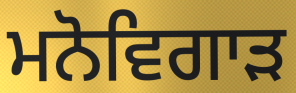
ਮਨੋਵਿਗਾੜ